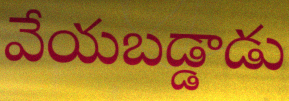
వేయబడ్డాడు